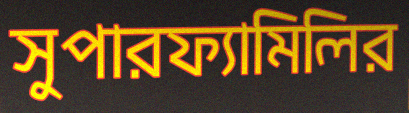
সুপারফ্যামিলির